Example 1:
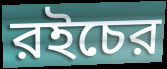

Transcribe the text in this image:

রইচের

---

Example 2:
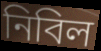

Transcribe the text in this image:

নিবিল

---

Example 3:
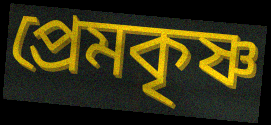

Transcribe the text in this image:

প্রেমকৃষ্ণ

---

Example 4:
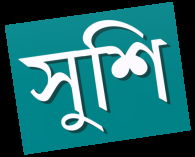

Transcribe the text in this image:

সুশি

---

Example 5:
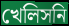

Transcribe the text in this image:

খেলিসনি